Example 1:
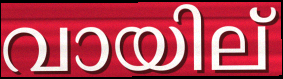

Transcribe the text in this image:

വായില്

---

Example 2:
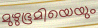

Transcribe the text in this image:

മുഴുഭൂമിയെയും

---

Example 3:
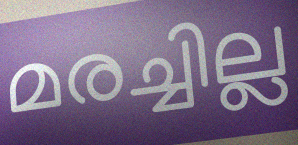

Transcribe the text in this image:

മരച്ചില്ല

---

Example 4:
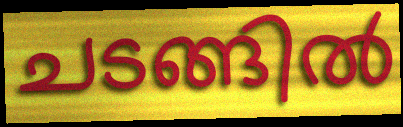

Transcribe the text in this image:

ചടങ്ങിൽ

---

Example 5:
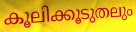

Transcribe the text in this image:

കൂലിക്കൂടുതലും